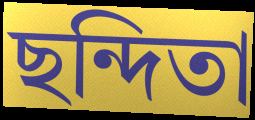
ছন্দিতা